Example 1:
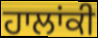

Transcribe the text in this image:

ਹਾਲਾਂਕੀ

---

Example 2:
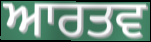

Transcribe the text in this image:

ਆਰਤਵ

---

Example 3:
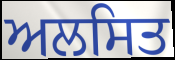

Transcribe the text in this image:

ਅਲਸਿਤ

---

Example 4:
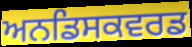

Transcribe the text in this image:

ਅਨਡਿਸਕਵਰਡ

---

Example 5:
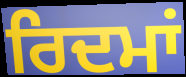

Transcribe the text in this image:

ਰਿਦਮਾਂ